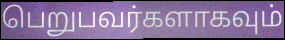
பெறுபவர்களாகவும்